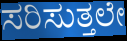
ಸರಿಸುತ್ತಲೇ